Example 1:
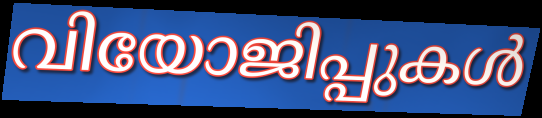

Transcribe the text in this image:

വിയോജിപ്പുകൾ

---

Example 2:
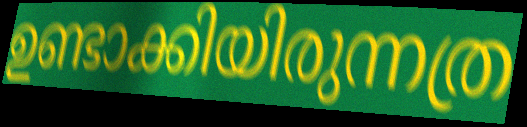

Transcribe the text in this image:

ഉണ്ടാക്കിയിരുന്നത്ര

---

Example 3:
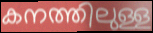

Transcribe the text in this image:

കനത്തിലുള്ള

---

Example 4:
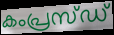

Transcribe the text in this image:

കംപ്രസ്ഡ്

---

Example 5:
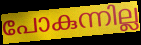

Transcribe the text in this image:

പോകുന്നില്ല